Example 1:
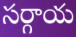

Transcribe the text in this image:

సర్గాయ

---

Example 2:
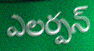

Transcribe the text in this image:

ఎలర్పన్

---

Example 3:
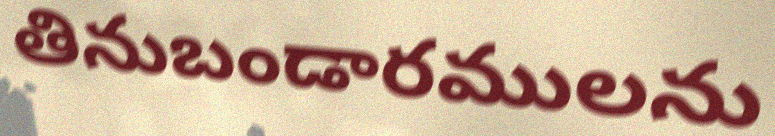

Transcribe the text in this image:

తినుబండారములను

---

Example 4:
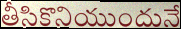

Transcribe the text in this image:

తీసికొనియుందునే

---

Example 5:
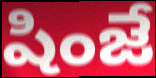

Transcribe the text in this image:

షింజే